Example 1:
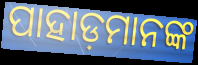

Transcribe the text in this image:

ପାହାଡ଼ମାନଙ୍କ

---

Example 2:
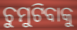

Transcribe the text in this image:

ଚୁମୁଟିବାକୁ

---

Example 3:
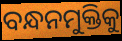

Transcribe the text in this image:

ବନ୍ଧନମୁକ୍ତିକୁ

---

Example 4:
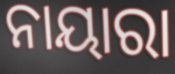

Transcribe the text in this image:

ନାୟାରା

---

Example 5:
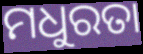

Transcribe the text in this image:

ମଧୁରତା